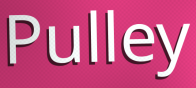
Pulley